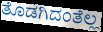
ತೊಡಗಿದಂತೆಲ್ಲ